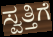
ಸ್ವತ್ತಿಗೆ